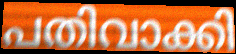
പതിവാക്കി